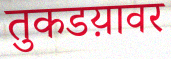
तुकडय़ावर